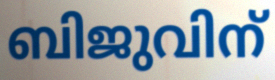
ബിജുവിന്